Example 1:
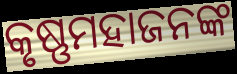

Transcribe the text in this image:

କୃଷ୍ଣମହାଜନଙ୍କ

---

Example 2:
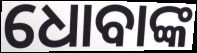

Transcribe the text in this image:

ଧୋବାଙ୍କ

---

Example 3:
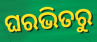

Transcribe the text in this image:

ଘରଭିତରୁ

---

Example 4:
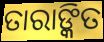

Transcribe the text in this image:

ତାରାଙ୍କିତ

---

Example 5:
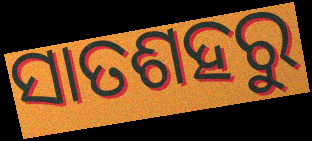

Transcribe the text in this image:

ସାତଶହରୁ